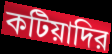
কটিয়াদির